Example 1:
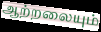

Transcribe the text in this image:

ஆற்றலையும்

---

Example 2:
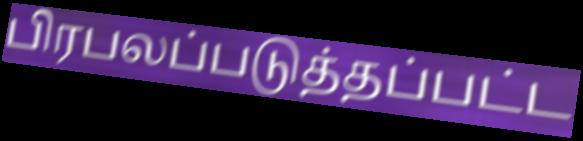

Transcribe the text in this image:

பிரபலப்படுத்தப்பட்ட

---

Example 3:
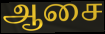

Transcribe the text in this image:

ஆசை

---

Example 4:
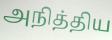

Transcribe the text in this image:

அநித்திய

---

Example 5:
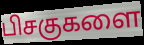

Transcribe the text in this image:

பிசகுகளை